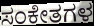
ಸಂಕೇತಗಳ